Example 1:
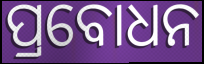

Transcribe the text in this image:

ପ୍ରବୋଧନ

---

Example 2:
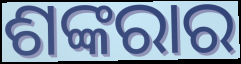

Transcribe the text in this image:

ଶଙ୍କରାର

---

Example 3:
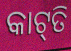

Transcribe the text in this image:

କାଟ୍‍ତି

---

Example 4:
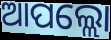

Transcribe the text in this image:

ଆପଲ୍ଲୋ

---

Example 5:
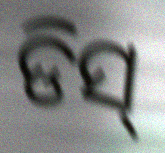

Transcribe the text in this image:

ଡିସ୍